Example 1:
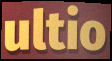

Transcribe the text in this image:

ultio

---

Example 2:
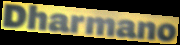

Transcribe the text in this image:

Dharmano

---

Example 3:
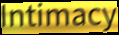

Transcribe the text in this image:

Intimacy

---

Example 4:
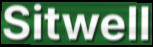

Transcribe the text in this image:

Sitwell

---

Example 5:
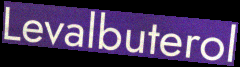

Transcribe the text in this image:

Levalbuterol